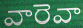
వారెవా